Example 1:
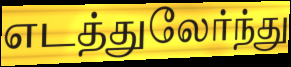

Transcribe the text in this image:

எடத்துலேர்ந்து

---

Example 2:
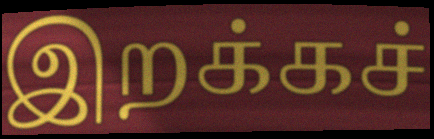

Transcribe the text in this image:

இறக்கச்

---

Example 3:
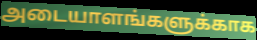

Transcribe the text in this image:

அடையாளங்களுக்காக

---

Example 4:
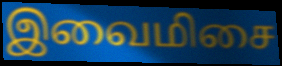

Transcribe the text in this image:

இவைமிசை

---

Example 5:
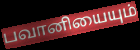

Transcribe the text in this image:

பவானியையும்